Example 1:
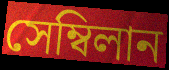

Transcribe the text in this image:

সেম্বিলান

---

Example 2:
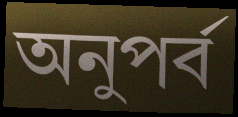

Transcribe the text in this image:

অনুপর্ব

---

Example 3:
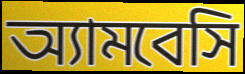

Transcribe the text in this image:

অ্যামবেসি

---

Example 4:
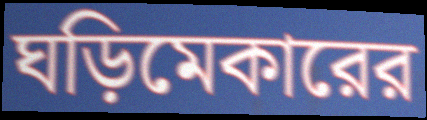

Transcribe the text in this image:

ঘড়িমেকারের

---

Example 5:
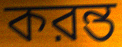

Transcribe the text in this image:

করন্ত